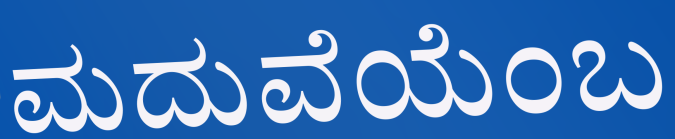
ಮದುವೆಯೆಂಬ